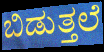
ಬಿಡುತ್ತಲೆ